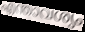
എന്താവശ്യം